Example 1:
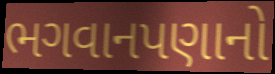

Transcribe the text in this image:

ભગવાનપણાનો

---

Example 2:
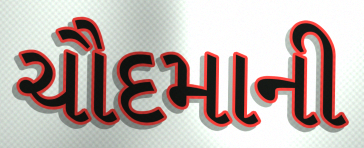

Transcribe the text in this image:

ચૌદમાની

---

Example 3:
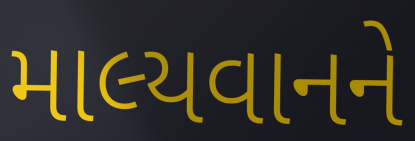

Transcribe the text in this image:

માલ્યવાનને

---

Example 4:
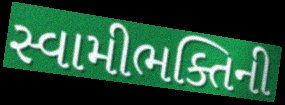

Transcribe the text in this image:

સ્વામીભક્તિની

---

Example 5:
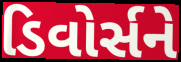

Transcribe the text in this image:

ડિવોર્સને